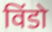
विंडो